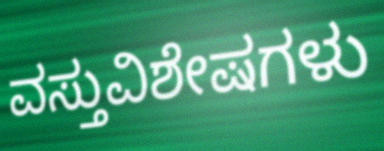
ವಸ್ತುವಿಶೇಷಗಳು